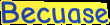
Becuase